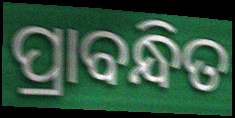
ପ୍ରାବନ୍ଧିତ